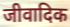
जीवादिक